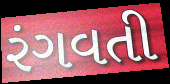
રંગવતી